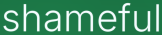
shameful